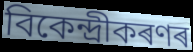
বিকেন্দ্ৰীকৰণৰ